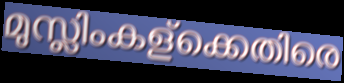
മുസ്ലിംകള്ക്കെതിരെ